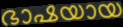
ഭാഷയായ